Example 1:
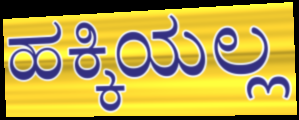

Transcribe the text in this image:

ಹಕ್ಕಿಯಲ್ಲ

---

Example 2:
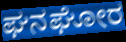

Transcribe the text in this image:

ಘನಘೋರ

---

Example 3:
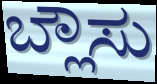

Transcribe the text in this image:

ಬ್ಲೌಸು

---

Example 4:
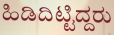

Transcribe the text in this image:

ಹಿಡಿದಿಟ್ಟಿದ್ದರು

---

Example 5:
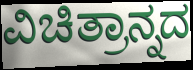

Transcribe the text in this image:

ವಿಚಿತ್ರಾನ್ನದ